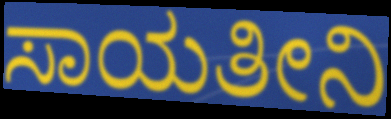
ಸಾಯತೀನಿ